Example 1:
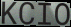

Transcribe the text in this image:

KCIO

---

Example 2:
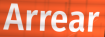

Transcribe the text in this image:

Arrear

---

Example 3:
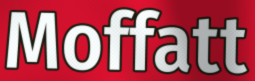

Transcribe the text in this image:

Moffatt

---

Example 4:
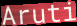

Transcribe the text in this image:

Aruti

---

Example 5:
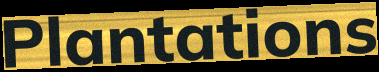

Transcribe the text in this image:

Plantations